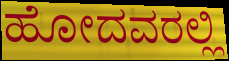
ಹೋದವರಲ್ಲಿ